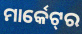
ମାର୍କେଟ୍‌ର